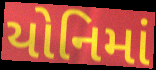
યોનિમાં